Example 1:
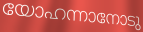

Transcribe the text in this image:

യോഹന്നാനോടു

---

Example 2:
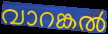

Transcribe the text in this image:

വാറങ്കൽ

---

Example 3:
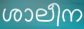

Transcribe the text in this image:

ശാലീന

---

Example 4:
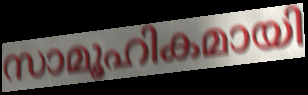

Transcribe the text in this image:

സാമൂഹികമായി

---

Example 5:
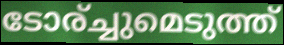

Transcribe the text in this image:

ടോര്ച്ചുമെടുത്ത്